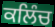
ਕਲਿੰਚ